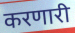
करणारी